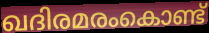
ഖദിരമരംകൊണ്ട്